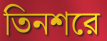
তিনশরে